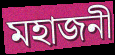
মহাজনী